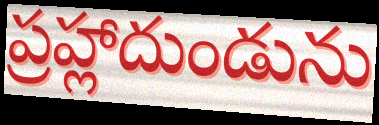
ప్రహ్లాదుండును